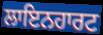
ਲਾਇਨਹਾਰਟ